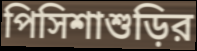
পিসিশাশুড়ির